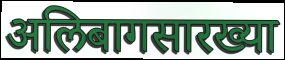
अलिबागसारख्या